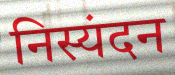
निस्यंदन